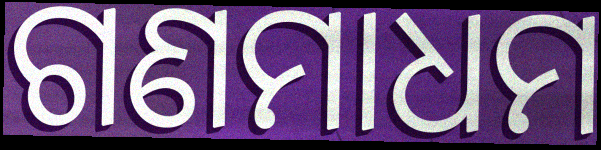
ଗଣମାଧମ